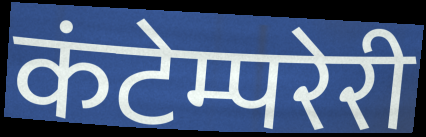
कंटेम्परेरी